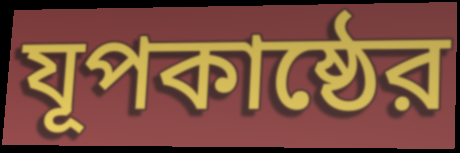
যূপকাষ্ঠের